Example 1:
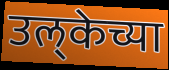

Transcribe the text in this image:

उल्केच्या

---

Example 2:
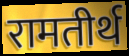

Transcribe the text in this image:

रामतीर्थ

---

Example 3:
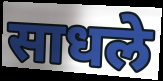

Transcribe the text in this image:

साधले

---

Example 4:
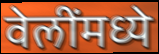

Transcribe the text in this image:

वेलींमध्ये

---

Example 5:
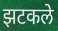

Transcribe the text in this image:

झटकले